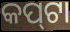
କପ୍‍ଟା